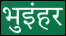
भुइंहर